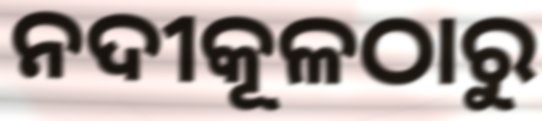
ନଦୀକୂଳଠାରୁ